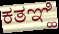
ಕತಞ್ಹಿ